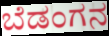
ಬೆಡಂಗನ